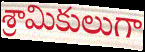
శ్రామికులుగా